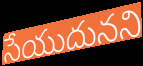
సేయుదునని